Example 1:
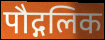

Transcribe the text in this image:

पौद्गलिक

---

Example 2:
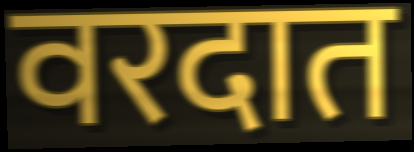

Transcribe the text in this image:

वरदात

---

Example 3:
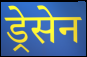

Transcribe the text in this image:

ड्रेसेन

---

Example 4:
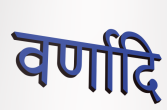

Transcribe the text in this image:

वर्णादि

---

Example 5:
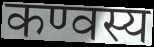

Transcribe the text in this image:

कण्वस्य